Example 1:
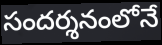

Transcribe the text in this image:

సందర్శనంలోనే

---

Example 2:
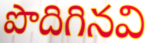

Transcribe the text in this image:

పొదిగినవి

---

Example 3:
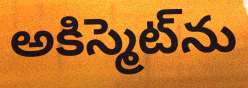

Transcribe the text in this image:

అకిస్మెట్‌ను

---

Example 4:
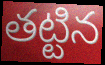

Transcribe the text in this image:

తట్టిన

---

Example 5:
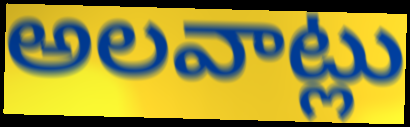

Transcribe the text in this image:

అలవాట్లు